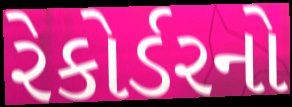
રેકોર્ડરનો